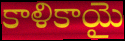
కాళికాయై